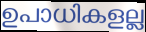
ഉപാധികളല്ല